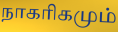
நாகரிகமும்